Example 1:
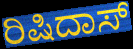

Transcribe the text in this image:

ರಿಷಿದಾಸ್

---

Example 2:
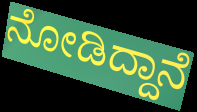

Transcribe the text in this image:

ನೋಡಿದ್ದಾನೆ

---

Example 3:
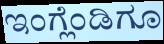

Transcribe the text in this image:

ಇಂಗ್ಲೆಂಡಿಗೂ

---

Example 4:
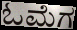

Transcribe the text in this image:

ಓಮೆಗ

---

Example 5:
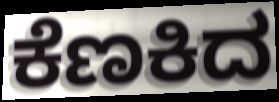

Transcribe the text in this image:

ಕೆಣಕಿದ